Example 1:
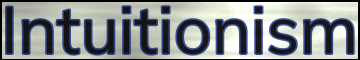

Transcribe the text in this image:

Intuitionism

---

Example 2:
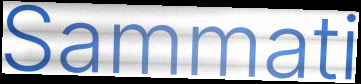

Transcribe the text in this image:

Sammati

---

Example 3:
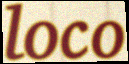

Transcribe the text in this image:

loco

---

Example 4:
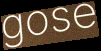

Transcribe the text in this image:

gose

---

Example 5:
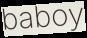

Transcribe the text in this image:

baboy